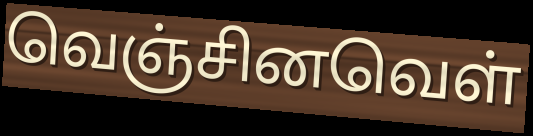
வெஞ்சினவெள்